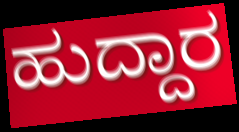
ಹುದ್ದಾರ